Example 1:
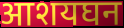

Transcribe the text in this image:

आशयघन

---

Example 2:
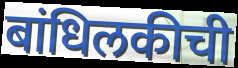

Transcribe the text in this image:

बांधिलकीची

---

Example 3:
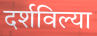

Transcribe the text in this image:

दर्शविल्या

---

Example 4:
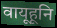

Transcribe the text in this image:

वायूहूनि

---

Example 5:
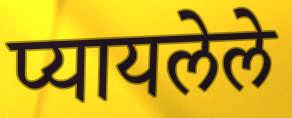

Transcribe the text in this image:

प्यायलेले